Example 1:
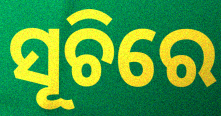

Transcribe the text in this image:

ସୂଚିରେ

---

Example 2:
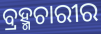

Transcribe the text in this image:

ବ୍ରହ୍ମଚାରୀର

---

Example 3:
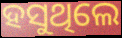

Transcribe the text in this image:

ହସୁଥିଲେ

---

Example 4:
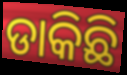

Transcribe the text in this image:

ଡାକିଛି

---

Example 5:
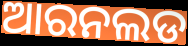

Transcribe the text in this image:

ଆରନଲଡ